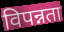
विपन्नता